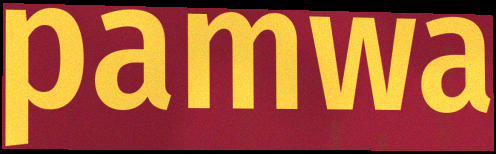
pamwa